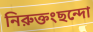
নিরুক্তংছন্দো